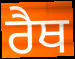
ਰੈਥ